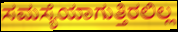
ಸಮಸ್ಯೆಯಾಗುತ್ತಿರಲಿಲ್ಲ